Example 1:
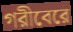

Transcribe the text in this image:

গরীবেরে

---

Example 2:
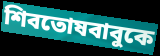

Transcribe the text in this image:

শিবতোষবাবুকে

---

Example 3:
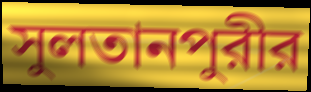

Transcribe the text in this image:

সুলতানপুরীর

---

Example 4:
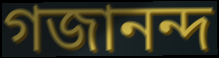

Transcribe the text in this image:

গজানন্দ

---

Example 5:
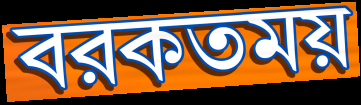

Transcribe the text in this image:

বরকতময়